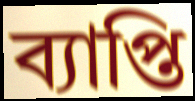
ব্যাপ্তি